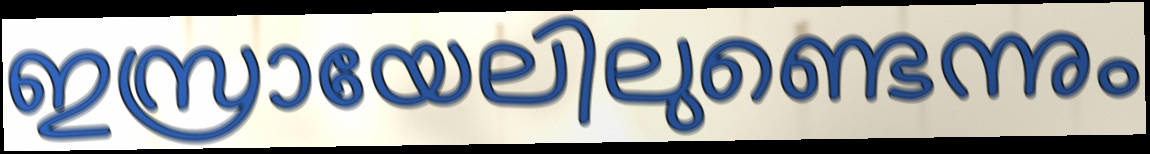
ഇസ്രായേലിലുണ്ടെന്നും